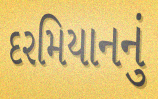
દરમિયાનનું